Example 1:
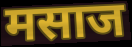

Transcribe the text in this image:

मसाज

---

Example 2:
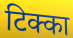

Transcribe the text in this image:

टिक्का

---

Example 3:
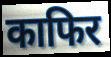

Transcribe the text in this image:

काफिर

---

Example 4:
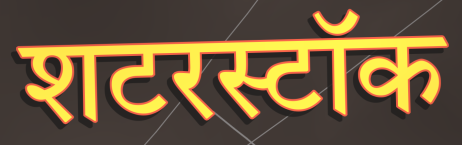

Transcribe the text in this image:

शटरस्टॉक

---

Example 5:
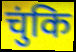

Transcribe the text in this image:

चुंकि